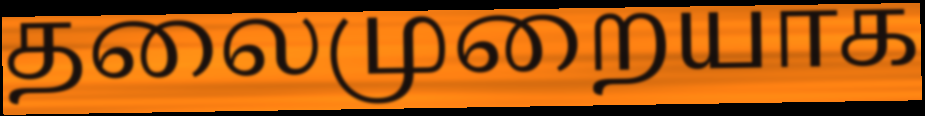
தலைமுறையாக